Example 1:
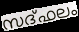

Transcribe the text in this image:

സദ്ഫലം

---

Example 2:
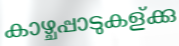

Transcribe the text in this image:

കാഴ്ചപ്പാടുകള്ക്കു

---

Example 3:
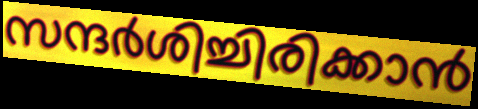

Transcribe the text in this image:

സന്ദർശിച്ചിരിക്കാൻ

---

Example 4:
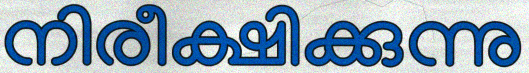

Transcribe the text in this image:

നിരീക്ഷിക്കുന്നു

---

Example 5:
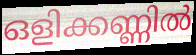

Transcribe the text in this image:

ഒളിക്കണ്ണിൽ